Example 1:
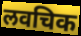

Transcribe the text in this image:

लवचिक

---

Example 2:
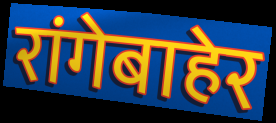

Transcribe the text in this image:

रांगेबाहेर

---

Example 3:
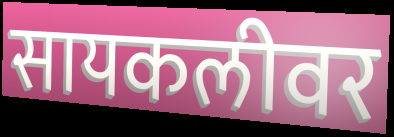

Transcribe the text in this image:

सायकलीवर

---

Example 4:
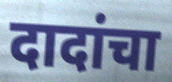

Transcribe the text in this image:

दादांचा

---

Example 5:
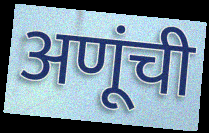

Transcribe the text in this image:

अणूंची